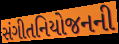
સંગીતનિયોજનની